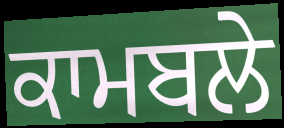
ਕਾਮਬਲੇ